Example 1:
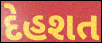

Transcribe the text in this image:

દેહશત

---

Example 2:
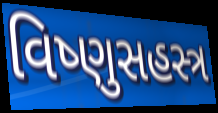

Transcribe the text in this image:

વિષ્ણુસહસ્ત્ર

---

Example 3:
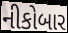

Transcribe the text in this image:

નીકોબાર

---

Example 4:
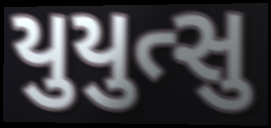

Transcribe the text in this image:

યુયુત્સુ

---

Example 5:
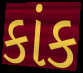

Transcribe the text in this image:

કાંક